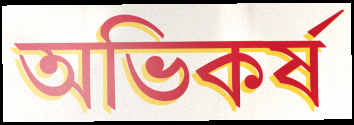
অভিকর্ষ